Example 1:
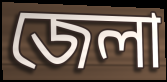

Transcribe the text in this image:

জেলা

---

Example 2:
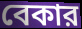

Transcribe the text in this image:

বেকার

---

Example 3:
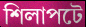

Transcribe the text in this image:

শিলাপটে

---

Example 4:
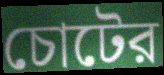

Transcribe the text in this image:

চোটের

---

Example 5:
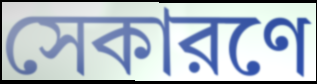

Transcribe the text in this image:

সেকারণে